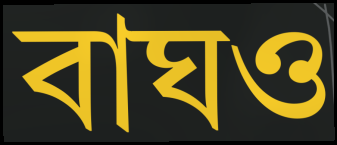
বাঘও